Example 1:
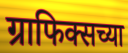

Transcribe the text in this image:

ग्राफिक्सच्या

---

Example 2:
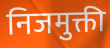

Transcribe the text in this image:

निजमुक्ती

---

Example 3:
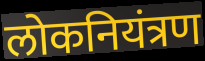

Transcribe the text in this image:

लोकनियंत्रण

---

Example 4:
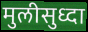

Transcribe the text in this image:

मुलीसुध्दा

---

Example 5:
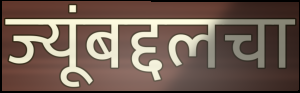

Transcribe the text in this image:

ज्यूंबद्दलचा